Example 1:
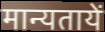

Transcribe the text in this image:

मान्यतायें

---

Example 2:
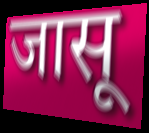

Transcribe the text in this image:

जासू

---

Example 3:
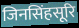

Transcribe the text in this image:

जिनसिंहसूरि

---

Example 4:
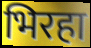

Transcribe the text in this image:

भिरहा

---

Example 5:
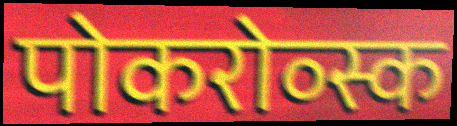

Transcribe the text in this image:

पोकरोव्स्क